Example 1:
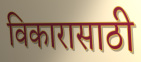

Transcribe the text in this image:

विकारासाठी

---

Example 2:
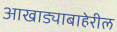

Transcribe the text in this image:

आखाड्याबाहेरील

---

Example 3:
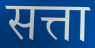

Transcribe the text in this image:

सत्ता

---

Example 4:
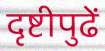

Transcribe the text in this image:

दृष्टीपुढें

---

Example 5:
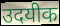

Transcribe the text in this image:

उदयीक